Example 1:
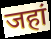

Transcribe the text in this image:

जहां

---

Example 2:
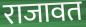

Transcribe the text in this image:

राजावत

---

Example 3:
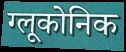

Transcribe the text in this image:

ग्लूकोनिक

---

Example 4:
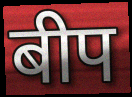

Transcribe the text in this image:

बीप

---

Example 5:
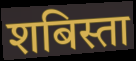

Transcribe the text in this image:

शबिस्ता